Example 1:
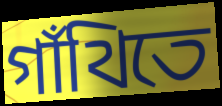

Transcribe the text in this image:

গাঁথিতে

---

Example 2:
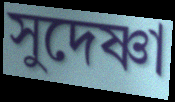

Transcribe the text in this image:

সুদেষ্ণা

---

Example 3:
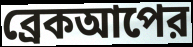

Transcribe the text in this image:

ব্রেকআপের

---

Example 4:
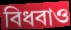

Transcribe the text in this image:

বিধবাও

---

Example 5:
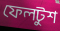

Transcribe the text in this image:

ফেলটুশ